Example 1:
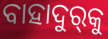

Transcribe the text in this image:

ବାହାଦୁର୍‌କୁ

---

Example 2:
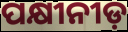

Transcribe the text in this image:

ପକ୍ଷୀନୀଡ଼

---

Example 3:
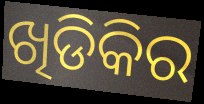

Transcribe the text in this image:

ଖିଡିକିର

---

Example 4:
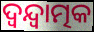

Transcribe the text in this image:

ଦ୍ଵନ୍ଦ୍ଵାତ୍ମକ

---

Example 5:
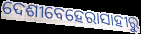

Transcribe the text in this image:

ଦେଶୀବେହେରାସାହୀରୁ